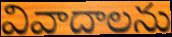
వివాదాలను